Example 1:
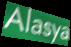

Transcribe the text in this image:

Alasya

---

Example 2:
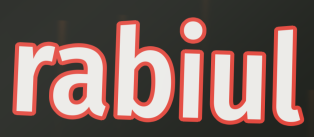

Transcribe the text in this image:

rabiul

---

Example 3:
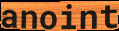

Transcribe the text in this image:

anoint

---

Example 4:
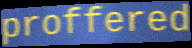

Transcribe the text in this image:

proffered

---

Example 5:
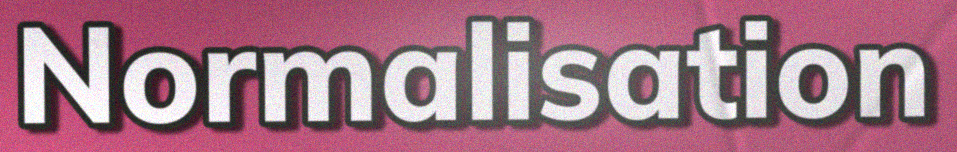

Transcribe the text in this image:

Normalisation